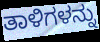
ತಾಳಿಗಳನ್ನು